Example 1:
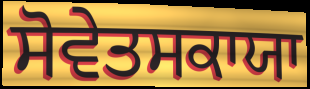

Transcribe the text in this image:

ਸੋਵੇਤਸਕਾਯਾ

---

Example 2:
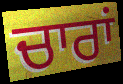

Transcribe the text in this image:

ਚਾਰਾਂ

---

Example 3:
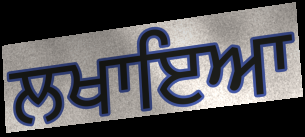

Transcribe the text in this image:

ਲਖਾਇਆ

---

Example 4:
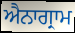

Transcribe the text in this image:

ਐਨਾਗ੍ਰਾਮ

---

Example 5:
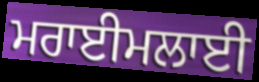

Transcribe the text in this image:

ਮਰਾਈਮਲਾਈ